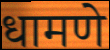
धामणे